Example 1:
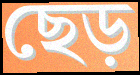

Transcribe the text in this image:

ছেড়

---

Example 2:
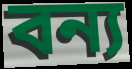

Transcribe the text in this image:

বন্য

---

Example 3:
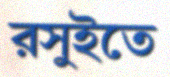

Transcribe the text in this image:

রসুইতে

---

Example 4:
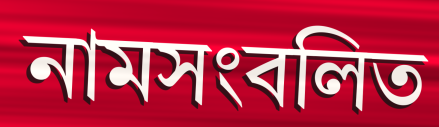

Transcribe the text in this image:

নামসংবলিত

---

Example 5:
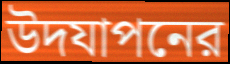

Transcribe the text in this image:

উদযাপনের